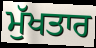
ਮੁੱਖਤਾਰ